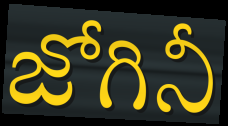
జోగినీ